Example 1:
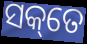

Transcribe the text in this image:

ସକ୍‌ତେ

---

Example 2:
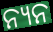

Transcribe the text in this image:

ନ୍ୟନ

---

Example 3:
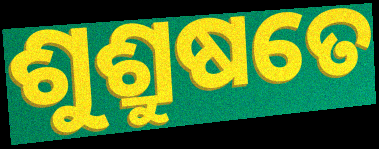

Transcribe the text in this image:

ଶୁଶ୍ରୁଷତେ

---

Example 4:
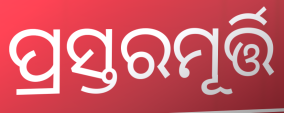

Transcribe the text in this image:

ପ୍ରସ୍ତରମୂର୍ତ୍ତି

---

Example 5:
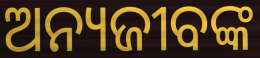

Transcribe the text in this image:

ଅନ୍ୟଜୀବଙ୍କ